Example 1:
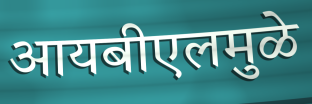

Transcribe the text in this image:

आयबीएलमुळे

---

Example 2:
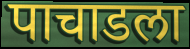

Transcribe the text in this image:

पाचाडला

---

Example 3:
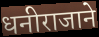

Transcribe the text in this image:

धनीराजाने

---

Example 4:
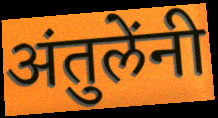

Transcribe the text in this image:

अंतुलेंनी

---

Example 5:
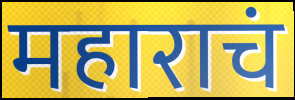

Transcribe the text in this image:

महाराचं